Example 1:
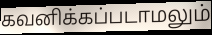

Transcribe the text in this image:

கவனிக்கப்படாமலும்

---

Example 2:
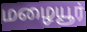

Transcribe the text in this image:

மழையூர்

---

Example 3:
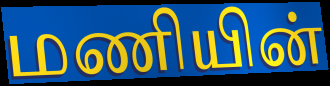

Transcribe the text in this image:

மணியின்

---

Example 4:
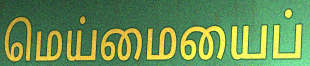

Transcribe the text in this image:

மெய்மையைப்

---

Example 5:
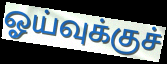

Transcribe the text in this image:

ஓய்வுக்குச்